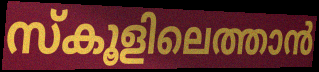
സ്കൂളിലെത്താൻ